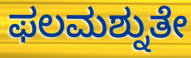
ಫಲಮಶ್ನುತೇ